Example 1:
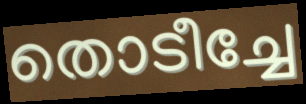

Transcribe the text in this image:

തൊടീച്ചേ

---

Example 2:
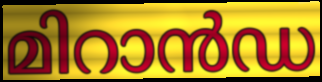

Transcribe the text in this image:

മിറാൻഡ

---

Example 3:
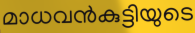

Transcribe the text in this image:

മാധവൻകുട്ടിയുടെ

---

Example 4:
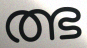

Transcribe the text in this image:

ത്ഭ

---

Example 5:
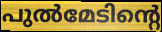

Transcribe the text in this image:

പുൽമേടിന്റെ